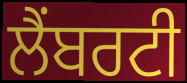
ਲੈਂਬਰਟੀ